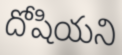
దోషియని